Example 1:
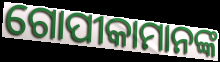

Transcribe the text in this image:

ଗୋପୀକାମାନଙ୍କ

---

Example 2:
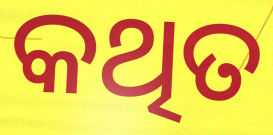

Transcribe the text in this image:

କଥିତ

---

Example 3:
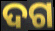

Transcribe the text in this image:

ଦଗ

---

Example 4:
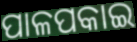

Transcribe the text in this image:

ପାଳପକାଇ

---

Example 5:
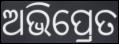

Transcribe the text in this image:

ଅଭିପ୍ରେତ